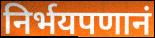
निर्भयपणानं